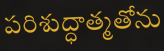
పరిశుద్ధాత్మతోను